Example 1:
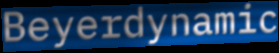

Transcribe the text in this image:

Beyerdynamic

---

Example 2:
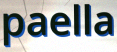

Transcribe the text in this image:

paella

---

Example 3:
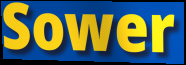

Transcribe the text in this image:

Sower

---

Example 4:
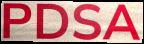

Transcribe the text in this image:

PDSA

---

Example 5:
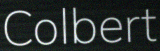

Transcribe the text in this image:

Colbert